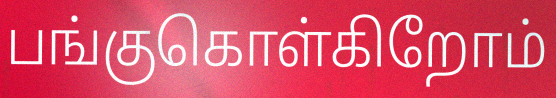
பங்குகொள்கிறோம்